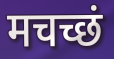
मचच्छं